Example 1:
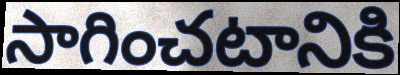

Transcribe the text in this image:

సాగించటానికి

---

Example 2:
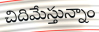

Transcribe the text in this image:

చిదిమేస్తున్నాం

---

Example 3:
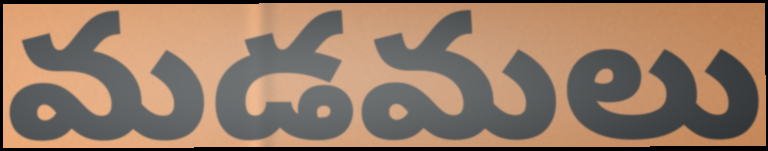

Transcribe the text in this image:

మడమలు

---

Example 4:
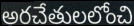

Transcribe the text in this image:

అరచేతులలోంచి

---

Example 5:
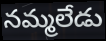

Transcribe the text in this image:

నమ్మలేడు